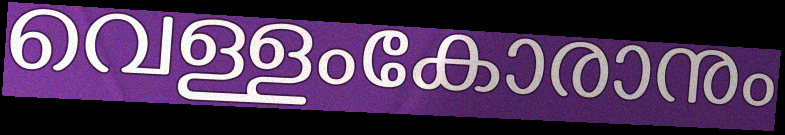
വെള്ളംകോരാനും